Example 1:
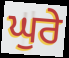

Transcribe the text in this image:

ਘੁਰੇ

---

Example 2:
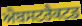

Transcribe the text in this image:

ਐਬਸਟਰੈਕਟਡ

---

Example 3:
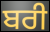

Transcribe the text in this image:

ਬਰੀ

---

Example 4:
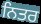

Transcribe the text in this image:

ਨਿਤਰ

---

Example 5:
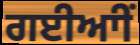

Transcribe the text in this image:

ਗਈਆੀਂ